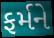
ફર્મને